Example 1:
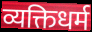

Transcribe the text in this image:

व्यक्तिधर्म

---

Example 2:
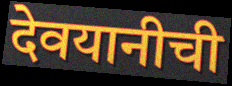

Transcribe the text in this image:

देवयानीची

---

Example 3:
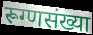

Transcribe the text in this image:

रूग्णसंख्या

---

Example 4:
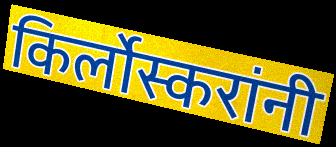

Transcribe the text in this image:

किर्लोस्करांनी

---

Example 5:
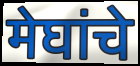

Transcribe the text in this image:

मेघांचे